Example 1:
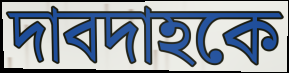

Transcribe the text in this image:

দাবদাহকে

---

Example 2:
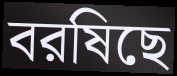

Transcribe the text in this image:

বরষিছে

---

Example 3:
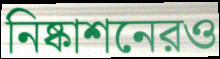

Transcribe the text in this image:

নিষ্কাশনেরও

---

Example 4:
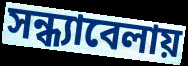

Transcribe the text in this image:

সন্ধ্যাবেলায়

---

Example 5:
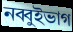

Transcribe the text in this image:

নব্বুইভাগ